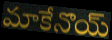
మాకేనొయ్